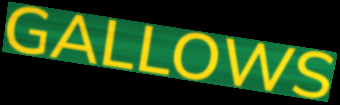
GALLOWS